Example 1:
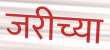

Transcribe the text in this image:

जरीच्या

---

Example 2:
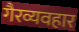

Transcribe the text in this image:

गैरव्यवहार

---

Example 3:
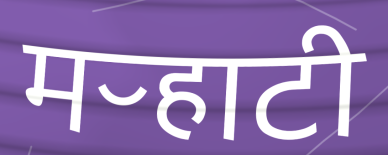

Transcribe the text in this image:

मऱ्हाटी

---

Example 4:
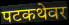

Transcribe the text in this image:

पटकथेवर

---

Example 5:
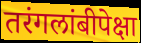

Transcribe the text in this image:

तरंगलांबीपेक्षा